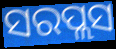
ସରପ୍ଲସ